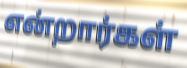
என்றார்கள்